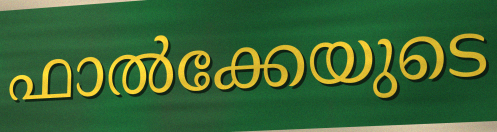
ഫാൽക്കേയുടെ